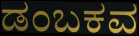
ಡಂಬಕವ